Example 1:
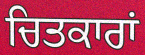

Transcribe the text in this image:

ਚਿਤਕਾਰਾਂ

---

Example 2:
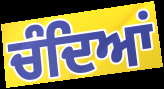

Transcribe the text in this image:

ਚੰਦਿਆਂ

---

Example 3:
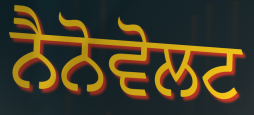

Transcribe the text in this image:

ਨੈਨੋਵੋਲਟ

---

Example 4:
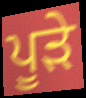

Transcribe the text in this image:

ਪੂੜੇ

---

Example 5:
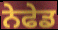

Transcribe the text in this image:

ਨੇਫੇਡ